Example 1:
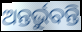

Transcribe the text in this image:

ଅନ୍ତର୍ଭୁବନ୍ତି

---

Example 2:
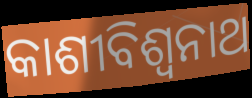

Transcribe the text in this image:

କାଶୀବିଶ୍ଵନାଥ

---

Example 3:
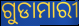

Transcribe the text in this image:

ଗୁଡାମାରୀ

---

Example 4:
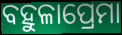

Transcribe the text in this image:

ବହୁଳାପ୍ରେମା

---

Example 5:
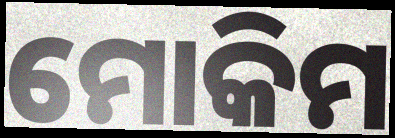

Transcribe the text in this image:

ମୋକିମ